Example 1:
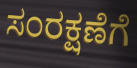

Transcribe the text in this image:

ಸಂರಕ್ಷಣೆಗೆ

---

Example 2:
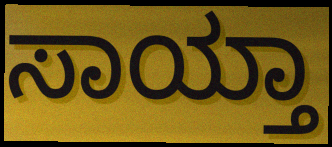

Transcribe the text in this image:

ಸಾಯ್ತಾ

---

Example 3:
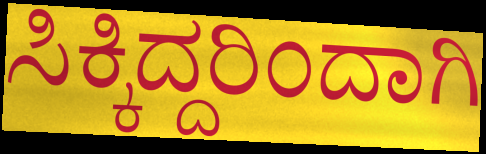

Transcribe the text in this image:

ಸಿಕ್ಕಿದ್ದರಿಂದಾಗಿ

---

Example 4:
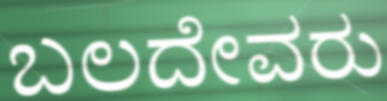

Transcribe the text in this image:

ಬಲದೇವರು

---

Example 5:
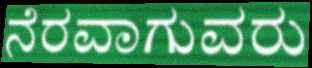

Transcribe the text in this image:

ನೆರವಾಗುವರು